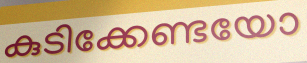
കുടിക്കേണ്ടയോ